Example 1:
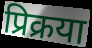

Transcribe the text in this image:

प्रिक्रया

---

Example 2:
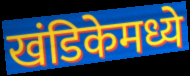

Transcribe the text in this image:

खंडिकेमध्ये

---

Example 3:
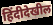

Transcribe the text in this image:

हिंदीदेखील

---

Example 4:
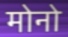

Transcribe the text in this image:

मोनो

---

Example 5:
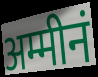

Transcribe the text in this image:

अम्मीनं